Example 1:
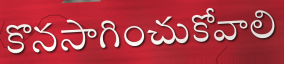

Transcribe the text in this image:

కొనసాగించుకోవాలి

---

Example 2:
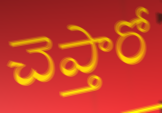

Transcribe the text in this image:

చెప్తారో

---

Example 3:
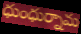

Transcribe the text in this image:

ధుంధుర్నామ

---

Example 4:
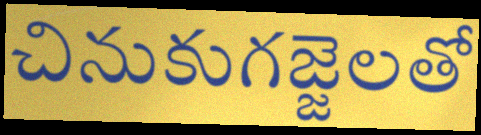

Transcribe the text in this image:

చినుకుగజ్జెలతో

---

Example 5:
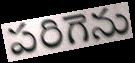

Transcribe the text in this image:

పరిగెను